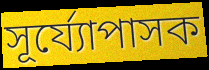
সূৰ্য্যোপাসক